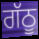
ਗੱਠੂ